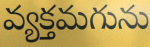
వ్యక్తమగును